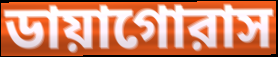
ডায়াগোরাস